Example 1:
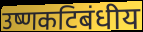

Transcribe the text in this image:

उष्णकटिबंधीय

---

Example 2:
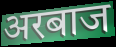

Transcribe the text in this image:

अरबाज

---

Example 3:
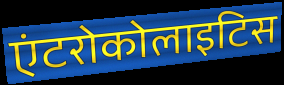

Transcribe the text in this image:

एंटरोकोलाइटिस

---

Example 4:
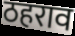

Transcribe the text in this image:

ठहराव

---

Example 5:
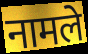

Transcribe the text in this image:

नामले